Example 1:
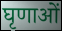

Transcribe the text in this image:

घृणाओं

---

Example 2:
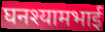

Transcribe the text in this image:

घनश्यामभाई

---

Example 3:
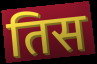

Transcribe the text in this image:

तिस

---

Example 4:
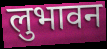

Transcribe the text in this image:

लुभावन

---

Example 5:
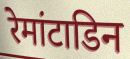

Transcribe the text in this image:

रेमांटाडिन